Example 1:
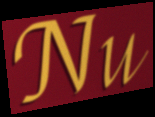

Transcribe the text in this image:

Nu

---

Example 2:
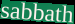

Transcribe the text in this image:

sabbath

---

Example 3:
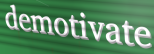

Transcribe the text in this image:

demotivate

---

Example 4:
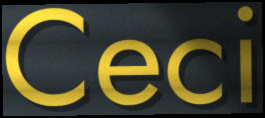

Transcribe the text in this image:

Ceci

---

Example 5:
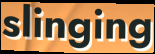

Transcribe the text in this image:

slinging